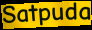
Satpuda